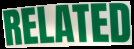
RELATED